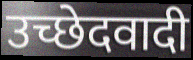
उच्छेदवादी